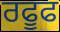
ਰਫੂਫ